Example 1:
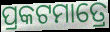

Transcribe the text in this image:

ପ୍ରକଟମାତ୍ରେ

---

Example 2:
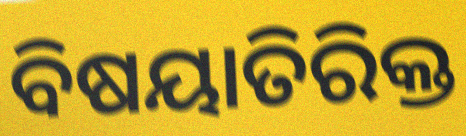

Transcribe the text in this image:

ବିଷୟାତିରିକ୍ତ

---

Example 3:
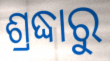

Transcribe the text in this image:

ଶ୍ରଦ୍ଧାରୁ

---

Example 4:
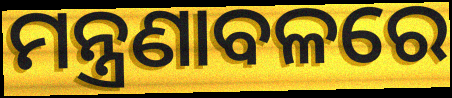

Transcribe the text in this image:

ମନ୍ତ୍ରଣାବଳରେ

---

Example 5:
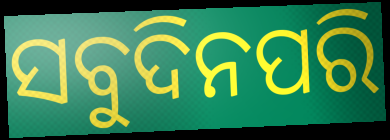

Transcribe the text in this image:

ସବୁଦିନପରି